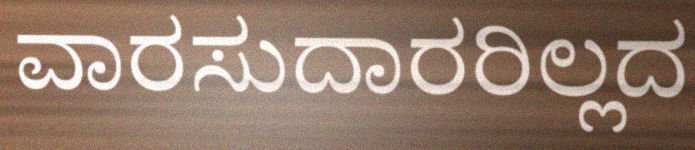
ವಾರಸುದಾರರಿಲ್ಲದ